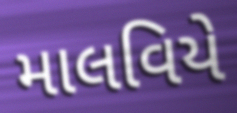
માલવિયે